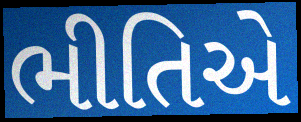
ભીતિએ